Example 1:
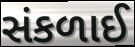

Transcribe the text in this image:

સંકળાઈ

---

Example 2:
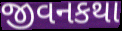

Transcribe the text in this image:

જીવનકથા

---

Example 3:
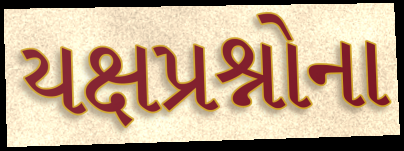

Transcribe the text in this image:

યક્ષપ્રશ્નોના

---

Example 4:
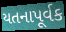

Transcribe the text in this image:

યતનાપૂર્વક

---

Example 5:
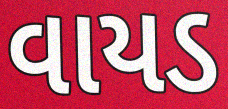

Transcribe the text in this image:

વાયડ